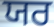
ਯਰ